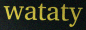
wataty